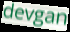
devgan